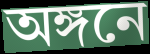
অঙ্গনে